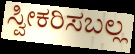
ಸ್ವೀಕರಿಸಬಲ್ಲ